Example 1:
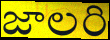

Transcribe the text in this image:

జాలరి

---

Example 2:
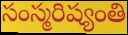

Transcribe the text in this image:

సంస్మరిష్యంతి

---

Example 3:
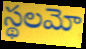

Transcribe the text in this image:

స్థలమో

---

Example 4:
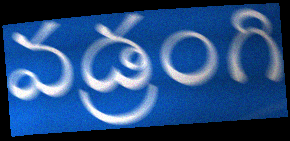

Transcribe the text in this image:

వడ్రంగి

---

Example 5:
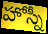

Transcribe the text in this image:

హోస్నీ